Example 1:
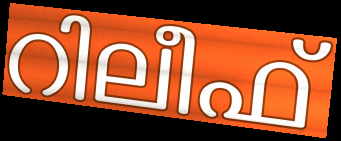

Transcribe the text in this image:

റിലീഫ്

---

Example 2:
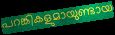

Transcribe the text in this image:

പറങ്കികളുമായുണ്ടായ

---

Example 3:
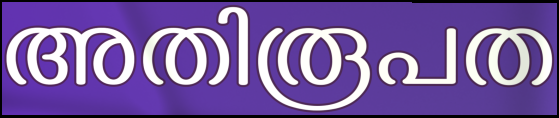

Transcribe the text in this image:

അതിരൂപത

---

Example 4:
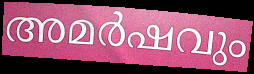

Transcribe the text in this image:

അമർഷവും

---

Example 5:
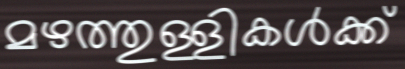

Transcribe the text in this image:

മഴത്തുള്ളികൾക്ക്